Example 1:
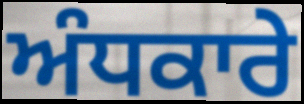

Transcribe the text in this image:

ਅੰਧਕਾਰੇ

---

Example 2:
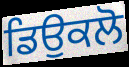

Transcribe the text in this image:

ਡਿਉਕਲੋ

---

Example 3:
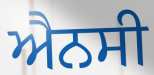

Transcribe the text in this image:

ਐਨਸੀ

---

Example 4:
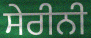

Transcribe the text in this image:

ਸੇਰੀਨੀ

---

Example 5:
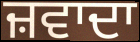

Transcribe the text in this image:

ਜ਼ਵਾਦਾ